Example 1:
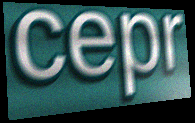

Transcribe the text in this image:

cepr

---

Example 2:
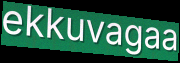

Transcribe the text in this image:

ekkuvagaa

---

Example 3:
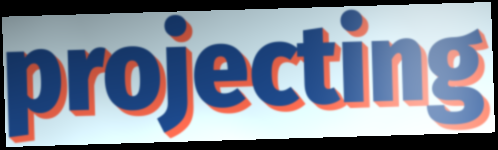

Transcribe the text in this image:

projecting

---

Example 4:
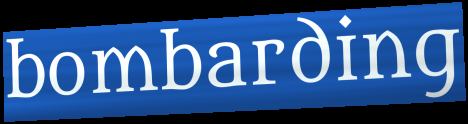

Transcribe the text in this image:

bombarding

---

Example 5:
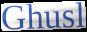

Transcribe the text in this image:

Ghusl